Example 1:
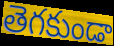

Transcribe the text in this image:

తెగకుండా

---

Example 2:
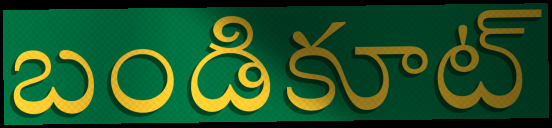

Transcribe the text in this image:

బండికూట్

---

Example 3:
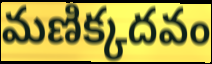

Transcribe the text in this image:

మణిక్కదవం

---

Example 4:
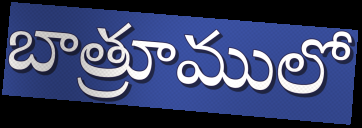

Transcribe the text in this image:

బాత్రూములో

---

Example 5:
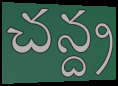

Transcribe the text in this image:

చన్ద్ర